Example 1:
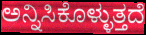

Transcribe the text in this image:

ಅನ್ನಿಸಿಕೊಳ್ಳುತ್ತದೆ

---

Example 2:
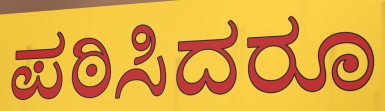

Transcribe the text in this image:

ಪಠಿಸಿದರೂ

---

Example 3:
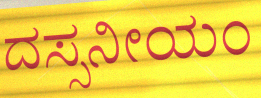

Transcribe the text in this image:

ದಸ್ಸನೀಯಂ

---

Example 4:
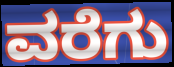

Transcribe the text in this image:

ವರೆಗು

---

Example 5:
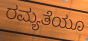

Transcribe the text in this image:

ರಮ್ಯತೆಯೂ